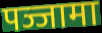
पज्जामा